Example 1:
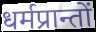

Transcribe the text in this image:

धर्मप्रान्तों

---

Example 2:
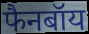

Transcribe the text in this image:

फैनबॉय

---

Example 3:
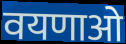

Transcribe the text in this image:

वयणाओ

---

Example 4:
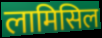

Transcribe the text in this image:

लामिसिल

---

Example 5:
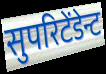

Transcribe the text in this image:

सुपरिटेंडेन्ट